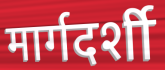
मार्गदर्शी